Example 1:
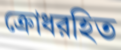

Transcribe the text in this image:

ক্রোধরহিত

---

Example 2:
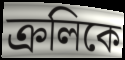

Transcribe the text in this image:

ক্রলিকে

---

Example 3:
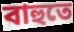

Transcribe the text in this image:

বাহুতে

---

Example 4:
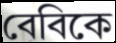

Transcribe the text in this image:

বেবিকে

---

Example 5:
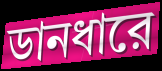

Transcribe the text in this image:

ডানধারে